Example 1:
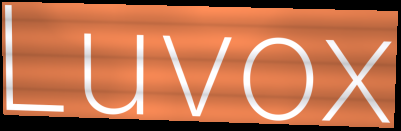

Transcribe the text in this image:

Luvox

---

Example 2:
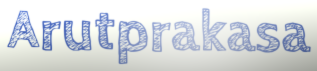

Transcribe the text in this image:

Arutprakasa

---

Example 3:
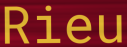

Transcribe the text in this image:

Rieu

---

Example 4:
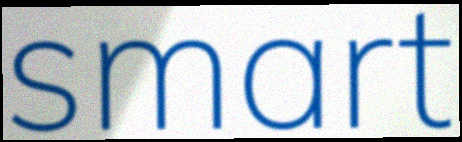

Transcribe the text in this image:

smart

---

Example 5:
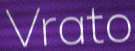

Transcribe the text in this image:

Vrato